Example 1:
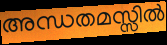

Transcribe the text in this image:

അന്ധതമസ്സിൽ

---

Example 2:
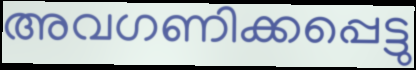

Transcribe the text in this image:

അവഗണിക്കപ്പെട്ടു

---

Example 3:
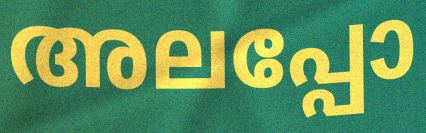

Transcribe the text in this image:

അലപ്പോ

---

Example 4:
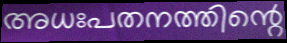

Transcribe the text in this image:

അധഃപതനത്തിന്റെ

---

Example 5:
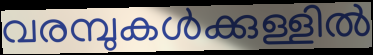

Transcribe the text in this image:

വരമ്പുകൾക്കുള്ളിൽ